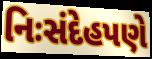
નિઃસંદેહપણે